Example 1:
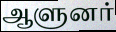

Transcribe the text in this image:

ஆளுனர்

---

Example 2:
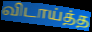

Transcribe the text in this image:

விடாய்த்த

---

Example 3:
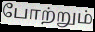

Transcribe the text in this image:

போற்றும்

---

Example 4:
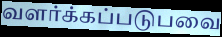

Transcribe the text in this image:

வளர்க்கப்படுபவை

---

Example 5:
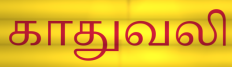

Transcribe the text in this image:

காதுவலி